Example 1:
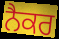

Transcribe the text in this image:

ਨੈਕਰ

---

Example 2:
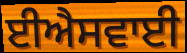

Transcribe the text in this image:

ਈਐਸਵਾਈ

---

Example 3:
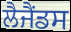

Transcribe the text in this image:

ਲੈਜੈਂਡਸ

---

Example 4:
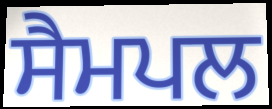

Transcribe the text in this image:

ਸੈਮਪਲ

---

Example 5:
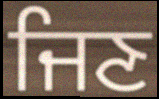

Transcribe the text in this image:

ਜਿਣ